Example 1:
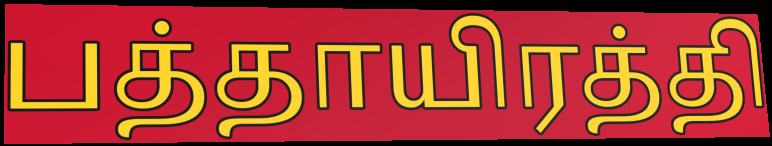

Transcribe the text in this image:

பத்தாயிரத்தி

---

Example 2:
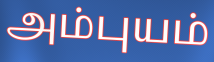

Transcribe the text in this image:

அம்புயம்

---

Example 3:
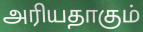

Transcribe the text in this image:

அரியதாகும்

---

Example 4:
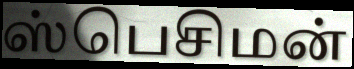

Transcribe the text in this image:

ஸ்பெசிமன்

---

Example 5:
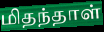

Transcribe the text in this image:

மிதந்தாள்